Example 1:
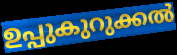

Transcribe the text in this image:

ഉപ്പുകുറുക്കൽ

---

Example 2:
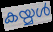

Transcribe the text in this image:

കയ്മൾ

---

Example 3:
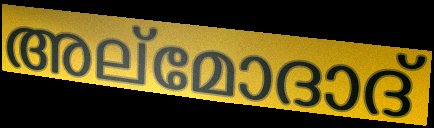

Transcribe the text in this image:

അല്മോദാദ്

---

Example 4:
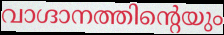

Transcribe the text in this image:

വാഗ്ദാനത്തിന്റെയും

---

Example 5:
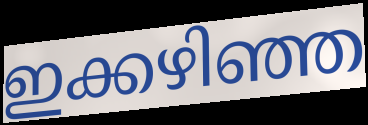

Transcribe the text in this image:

ഇക്കഴിഞ്ഞ